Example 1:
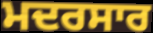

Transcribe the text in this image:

ਮਦਰਸਾਰ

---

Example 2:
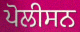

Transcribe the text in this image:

ਪੋਲੀਸਨ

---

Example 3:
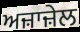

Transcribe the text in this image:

ਅਜ਼ਾਜ਼ੇਲ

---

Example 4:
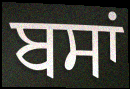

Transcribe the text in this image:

ਬਸਾਂ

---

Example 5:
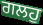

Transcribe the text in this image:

ਗਲਹੁ